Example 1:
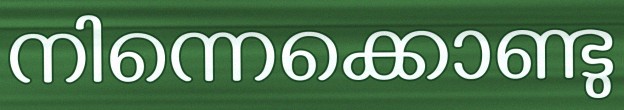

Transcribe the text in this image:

നിന്നെക്കൊണ്ടു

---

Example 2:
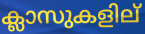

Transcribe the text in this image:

ക്ലാസുകളില്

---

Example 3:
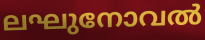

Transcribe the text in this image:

ലഘുനോവൽ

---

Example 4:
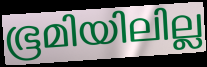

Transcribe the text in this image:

ഭൂമിയിലില്ല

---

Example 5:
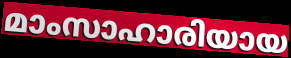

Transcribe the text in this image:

മാംസാഹാരിയായ